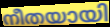
നീതയായി